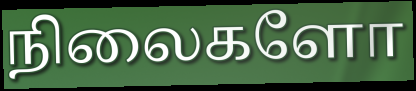
நிலைகளோ